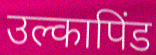
उल्कापिंड